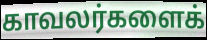
காவலர்களைக்